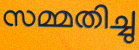
സമ്മതിച്ചു